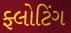
ફ્લોટિંગ